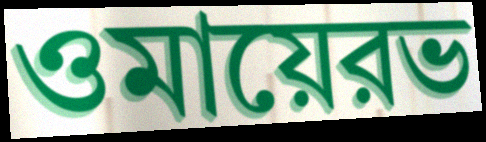
ওমায়েরভ